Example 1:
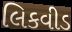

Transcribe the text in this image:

લિકવીડ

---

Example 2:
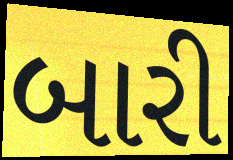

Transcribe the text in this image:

બારી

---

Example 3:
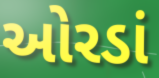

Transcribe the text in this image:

ઓરડાં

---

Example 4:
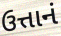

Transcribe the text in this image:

ઉત્તાનં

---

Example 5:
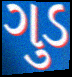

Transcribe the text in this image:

ગુડ